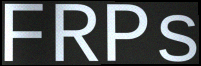
FRPs